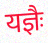
यज्ञैः